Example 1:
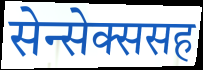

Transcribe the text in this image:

सेन्सेक्ससह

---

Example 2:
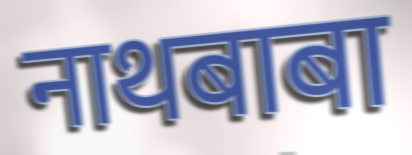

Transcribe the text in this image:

नाथबाबा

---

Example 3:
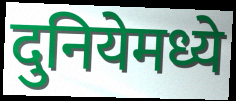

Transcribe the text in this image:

दुनियेमध्ये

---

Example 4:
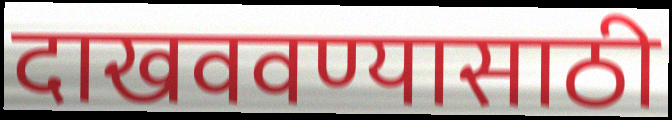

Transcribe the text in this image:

दाखववण्यासाठी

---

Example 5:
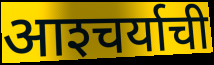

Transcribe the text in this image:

आश्‍चर्याची